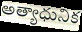
అత్యాధునిక